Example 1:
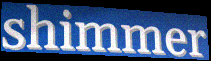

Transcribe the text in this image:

shimmer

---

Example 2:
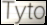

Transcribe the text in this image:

Tyto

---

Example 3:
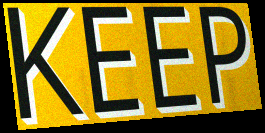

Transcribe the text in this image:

KEEP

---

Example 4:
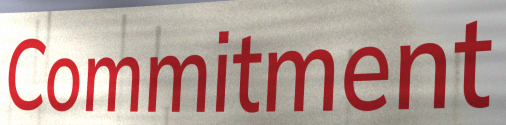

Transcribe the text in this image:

Commitment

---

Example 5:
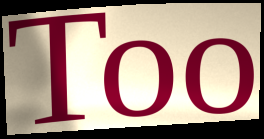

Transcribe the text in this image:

Too